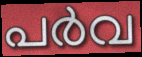
പർവ